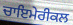
ਚਾਇਮੇਰੀਕਲ